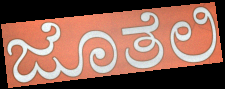
ಜೊತೆಲಿ